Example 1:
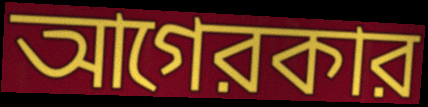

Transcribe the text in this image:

আগেরকার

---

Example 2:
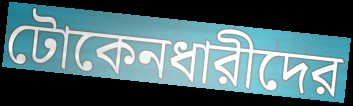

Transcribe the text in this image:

টোকেনধারীদের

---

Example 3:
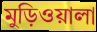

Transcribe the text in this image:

মুড়িওয়ালা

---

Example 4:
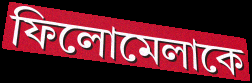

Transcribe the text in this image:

ফিলোমেলাকে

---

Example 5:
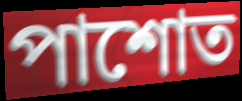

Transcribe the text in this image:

পাশোত